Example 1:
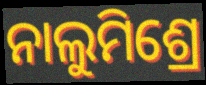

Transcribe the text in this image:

ନାଲୁମିଶ୍ରେ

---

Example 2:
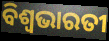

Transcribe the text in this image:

ବିଶ୍ୱଭାରତୀ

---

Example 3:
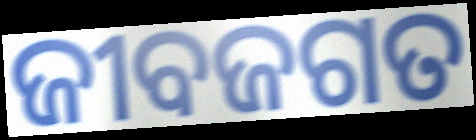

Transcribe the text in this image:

ଜୀବଜଗତ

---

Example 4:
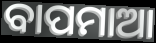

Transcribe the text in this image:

ବାପମାଆ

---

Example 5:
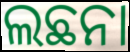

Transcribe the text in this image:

ଲଛନା